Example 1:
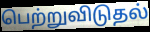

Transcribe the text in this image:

பெற்றுவிடுதல்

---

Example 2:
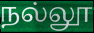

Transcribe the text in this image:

நல்லூ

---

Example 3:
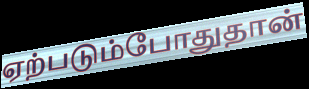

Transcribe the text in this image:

ஏற்படும்போதுதான்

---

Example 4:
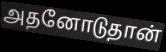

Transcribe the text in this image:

அதனோடுதான்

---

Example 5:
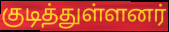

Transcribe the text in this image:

குடித்துள்ளனர்